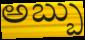
అబ్బు